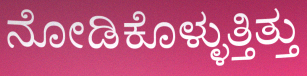
ನೋಡಿಕೊಳ್ಳುತ್ತಿತ್ತು